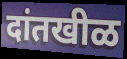
दांतखीळ